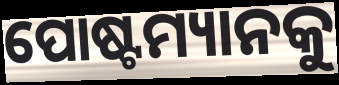
ପୋଷ୍ଟମ୍ୟାନକୁ